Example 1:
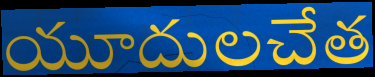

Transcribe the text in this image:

యూదులచేత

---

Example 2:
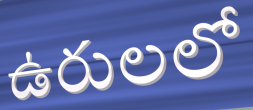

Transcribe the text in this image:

ఉరులలో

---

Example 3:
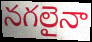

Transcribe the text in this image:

నగలైనా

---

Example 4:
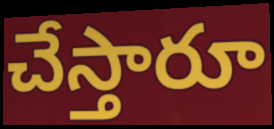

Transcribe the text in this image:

చేస్తారూ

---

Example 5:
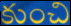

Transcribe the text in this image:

కుంచి